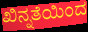
ಖಿನ್ನತೆಯಿಂದ